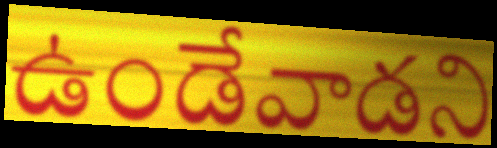
ఉండేవాడని